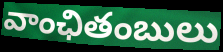
వాంఛితంబులు